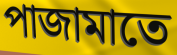
পাজামাতে